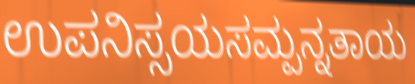
ಉಪನಿಸ್ಸಯಸಮ್ಪನ್ನತಾಯ